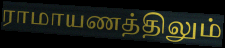
ராமாயணத்திலும்